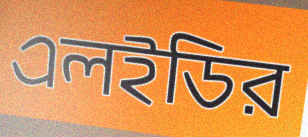
এলইডির